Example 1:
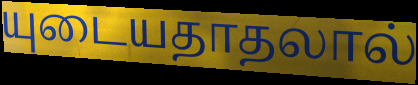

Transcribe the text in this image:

யுடையதாதலால்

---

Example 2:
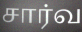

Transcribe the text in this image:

சார்வ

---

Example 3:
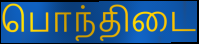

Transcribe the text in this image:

பொந்திடை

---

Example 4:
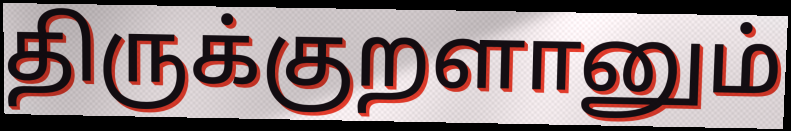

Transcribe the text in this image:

திருக்குறளானும்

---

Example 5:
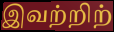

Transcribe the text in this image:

இவற்றிற்